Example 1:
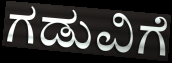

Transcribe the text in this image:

ಗಡುವಿಗೆ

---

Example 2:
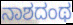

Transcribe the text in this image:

ನಾಶದಂಥ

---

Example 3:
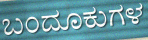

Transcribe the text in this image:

ಬಂದೂಕುಗಳ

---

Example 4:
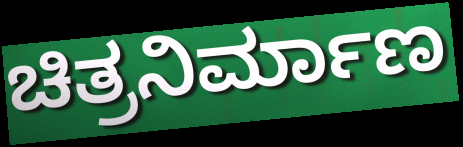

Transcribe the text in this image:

ಚಿತ್ರನಿರ್ಮಾಣ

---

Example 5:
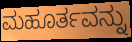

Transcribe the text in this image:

ಮಹೂರ್ತವನ್ನು